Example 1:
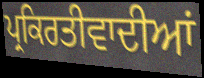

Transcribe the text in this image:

ਪ੍ਰਕਿਰਤੀਵਾਦੀਆਂ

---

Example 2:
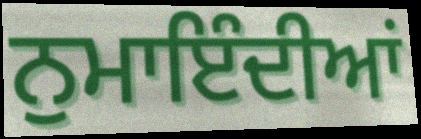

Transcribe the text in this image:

ਨੁਮਾਇੰਦੀਆਂ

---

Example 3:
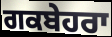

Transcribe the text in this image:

ਗਕਬੇਹਰਾ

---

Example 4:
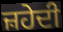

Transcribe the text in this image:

ਜ਼ਹੇਦੀ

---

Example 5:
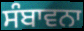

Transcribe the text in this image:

ਸੰਬਾਵਨਾ